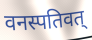
वनस्पतिवत्